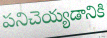
పనిచెయ్యడానికి